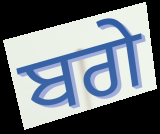
ਬਗੇ